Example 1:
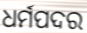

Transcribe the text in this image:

ଧର୍ମପଦର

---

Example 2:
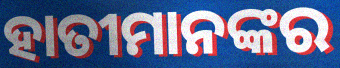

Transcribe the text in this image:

ହାତୀମାନଙ୍କର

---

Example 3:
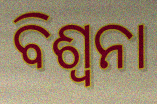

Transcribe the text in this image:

ବିଶ୍ୱନା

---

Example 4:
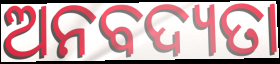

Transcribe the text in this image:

ଅନବଦ୍ୟତା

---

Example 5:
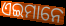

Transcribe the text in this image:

ଏଇମାନେ